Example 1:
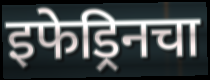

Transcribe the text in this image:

इफेड्रिनचा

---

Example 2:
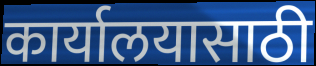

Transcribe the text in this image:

कार्यालयासाठी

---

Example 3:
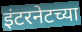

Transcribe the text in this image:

इंटरनेटच्या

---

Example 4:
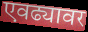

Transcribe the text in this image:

एवढ्यावर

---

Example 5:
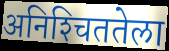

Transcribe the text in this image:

अनिश्चिततेला